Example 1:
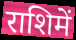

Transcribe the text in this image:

राशिमें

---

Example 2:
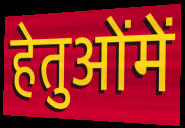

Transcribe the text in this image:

हेतुओंमें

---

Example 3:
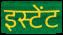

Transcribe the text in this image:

इस्टेंट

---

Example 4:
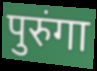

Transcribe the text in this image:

पुरुंगा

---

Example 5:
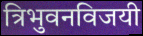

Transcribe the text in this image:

त्रिभुवनविजयी